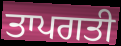
ਤਾਪਗਤੀ